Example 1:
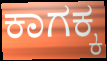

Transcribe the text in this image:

ಕಾಗಕ್ಕ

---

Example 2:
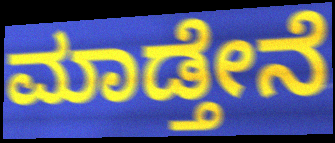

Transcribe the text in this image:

ಮಾಡ್ತೇನೆ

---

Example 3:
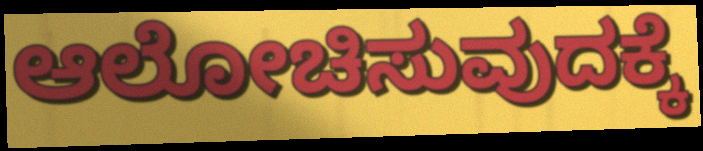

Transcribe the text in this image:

ಆಲೋಚಿಸುವುದಕ್ಕೆ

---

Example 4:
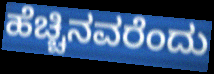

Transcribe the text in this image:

ಹೆಚ್ಚಿನವರೆಂದು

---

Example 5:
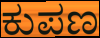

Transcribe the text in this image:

ಕುಪಣ